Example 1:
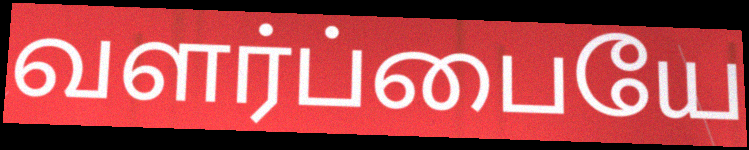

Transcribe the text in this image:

வளர்ப்பையே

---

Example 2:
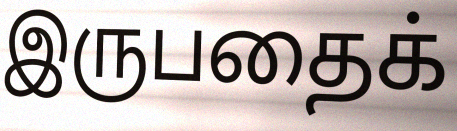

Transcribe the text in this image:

இருபதைக்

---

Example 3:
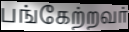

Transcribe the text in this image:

பங்கேற்றவர்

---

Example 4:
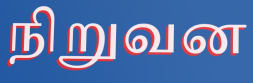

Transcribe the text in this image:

நிறுவன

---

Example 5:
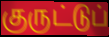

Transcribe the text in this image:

குருட்டுப்